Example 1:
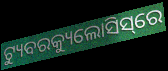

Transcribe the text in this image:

ଟ୍ୟୁବରକ୍ୟୁଲୋସିସ୍‌ରେ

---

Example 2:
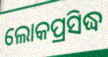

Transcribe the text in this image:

ଲୋକପ୍ରସିଦ୍ଧ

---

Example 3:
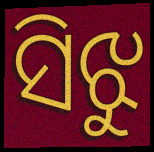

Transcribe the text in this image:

ସିଝୁ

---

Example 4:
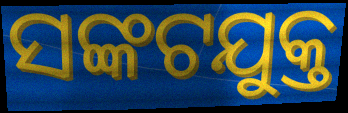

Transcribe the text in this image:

ସଙ୍କଟଯୁକ୍ତ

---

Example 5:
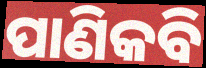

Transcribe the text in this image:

ପାଣିକବି